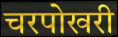
चरपोखरी